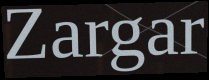
Zargar